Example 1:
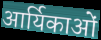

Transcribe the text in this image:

आर्यिकाओं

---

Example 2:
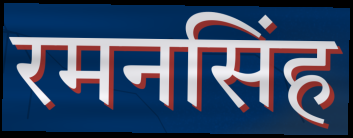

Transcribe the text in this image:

रमनसिंह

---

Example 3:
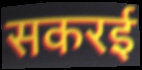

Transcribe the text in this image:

सकरई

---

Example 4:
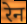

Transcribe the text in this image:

रेन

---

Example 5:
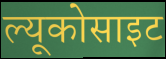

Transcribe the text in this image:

ल्यूकोसाइट